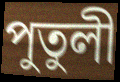
পুতুলী